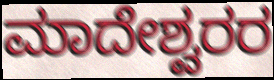
ಮಾದೇಶ್ವರರ